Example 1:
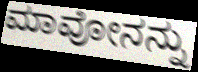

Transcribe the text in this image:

ಮಾವೋನನ್ನು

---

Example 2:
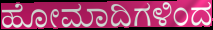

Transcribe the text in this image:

ಹೋಮಾದಿಗಳಿಂದ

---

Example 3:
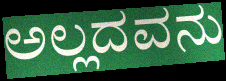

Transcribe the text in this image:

ಅಲ್ಲದವನು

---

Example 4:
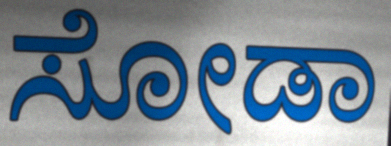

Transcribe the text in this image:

ಸೋಡಾ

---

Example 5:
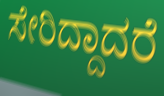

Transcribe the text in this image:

ಸೇರಿದ್ದಾದರೆ